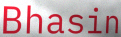
Bhasin